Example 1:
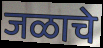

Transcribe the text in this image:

जळाचे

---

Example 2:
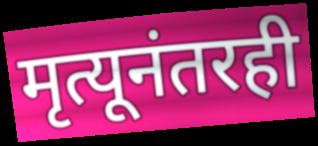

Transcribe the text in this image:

मृत्यूनंतरही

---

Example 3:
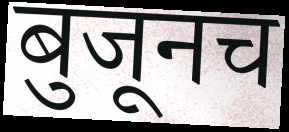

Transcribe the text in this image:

बुजूनच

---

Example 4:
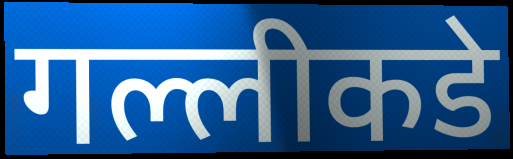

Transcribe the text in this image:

गल्लीकडे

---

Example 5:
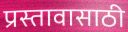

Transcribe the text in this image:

प्रस्तावासाठी